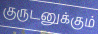
குருடனுக்கும்